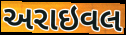
અરાઇવલ